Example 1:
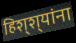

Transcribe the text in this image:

हिश्श्यांना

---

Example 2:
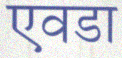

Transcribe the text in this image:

एवडा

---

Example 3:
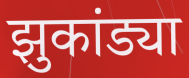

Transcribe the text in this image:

झुकांड्या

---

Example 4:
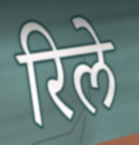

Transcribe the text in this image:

रिले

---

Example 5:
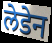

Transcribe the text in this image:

लेडेन